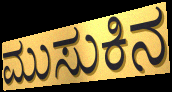
ಮುಸುಕಿನ